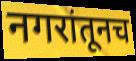
नगरांतूनच